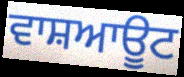
ਵਾਸ਼ਆਊਟ